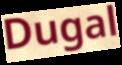
Dugal